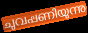
ചുവപ്പണിയുന്നു